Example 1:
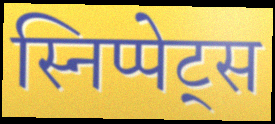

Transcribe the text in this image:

स्निप्पेट्स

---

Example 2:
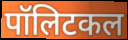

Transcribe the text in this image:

पॉलिटकल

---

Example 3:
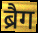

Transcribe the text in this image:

ब्रैग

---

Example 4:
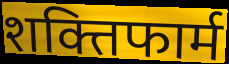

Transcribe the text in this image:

शक्तिफार्म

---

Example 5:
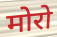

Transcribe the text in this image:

मोरो